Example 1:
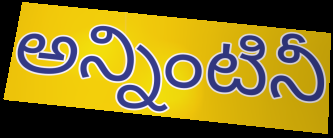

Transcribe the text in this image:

అన్నింటినీ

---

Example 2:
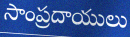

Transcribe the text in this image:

సాంప్రదాయులు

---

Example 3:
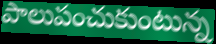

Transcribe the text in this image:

పాలుపంచుకుంటున్న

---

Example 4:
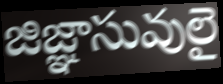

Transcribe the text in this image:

జిజ్ఞాసువులై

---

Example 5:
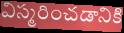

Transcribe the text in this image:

విస్మరించడానికి